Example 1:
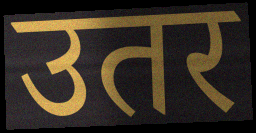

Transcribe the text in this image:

उतर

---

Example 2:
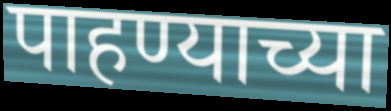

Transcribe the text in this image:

पाहण्याच्या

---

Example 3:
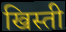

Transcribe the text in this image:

खिस्ती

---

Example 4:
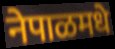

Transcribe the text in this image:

नेपाळमधे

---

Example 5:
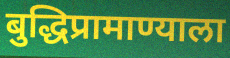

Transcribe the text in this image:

बुद्धिप्रामाण्याला